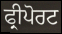
ਫ੍ਰੀਪੋਰਟ